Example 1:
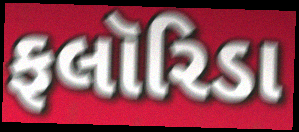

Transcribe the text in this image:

ફલૉરિડા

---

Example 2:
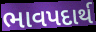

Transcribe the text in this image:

ભાવપદાર્થ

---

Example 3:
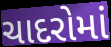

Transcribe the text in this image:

ચાદરોમાં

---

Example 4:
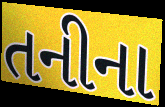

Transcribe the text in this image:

તનીના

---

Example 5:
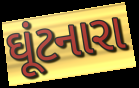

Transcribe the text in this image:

ઘૂંટનારા